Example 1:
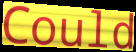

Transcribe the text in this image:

Could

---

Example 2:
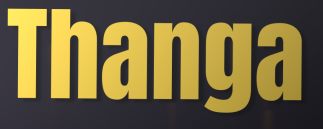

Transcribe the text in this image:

Thanga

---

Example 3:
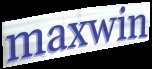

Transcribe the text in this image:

maxwin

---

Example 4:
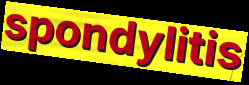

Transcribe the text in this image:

spondylitis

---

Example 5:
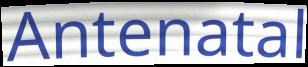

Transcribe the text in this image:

Antenatal